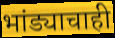
भांड्याचाही